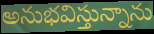
అనుభవిస్తున్నాను